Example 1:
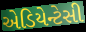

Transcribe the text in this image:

એડિયેન્ટેસી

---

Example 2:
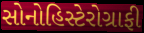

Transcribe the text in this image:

સોનોહિસ્ટેરોગ્રાફી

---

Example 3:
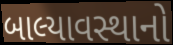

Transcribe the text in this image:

બાલ્યાવસ્થાનો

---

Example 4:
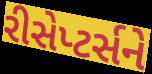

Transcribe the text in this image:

રીસેપ્ટર્સને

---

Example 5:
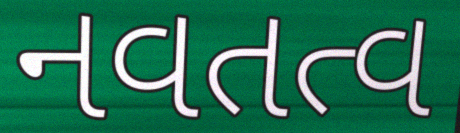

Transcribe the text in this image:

નવતત્વ